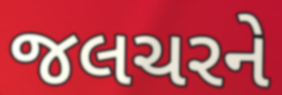
જલચરને